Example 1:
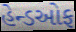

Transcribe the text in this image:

હેન્ડઓફ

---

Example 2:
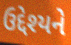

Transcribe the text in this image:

ઉદ્દેશ્યને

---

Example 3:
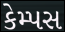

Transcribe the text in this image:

કેમ્પસ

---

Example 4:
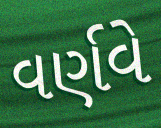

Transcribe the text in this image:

વર્ણવે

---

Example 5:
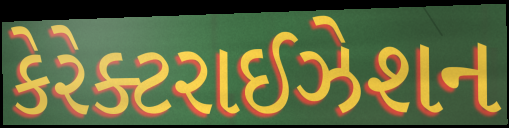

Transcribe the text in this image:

કેરેક્ટરાઈઝેશન